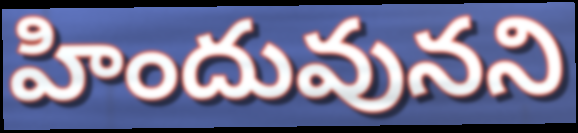
హిందువునని